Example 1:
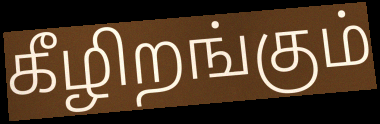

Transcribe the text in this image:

கீழிறங்கும்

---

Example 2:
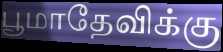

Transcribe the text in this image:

பூமாதேவிக்கு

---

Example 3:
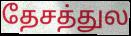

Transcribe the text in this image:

தேசத்துல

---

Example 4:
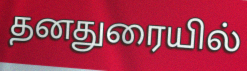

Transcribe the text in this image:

தனதுரையில்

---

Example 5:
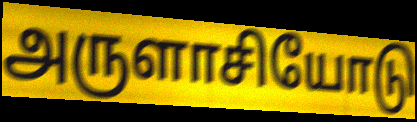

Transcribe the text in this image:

அருளாசியோடு